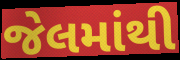
જેલમાંથી